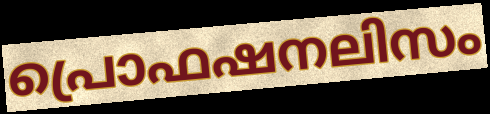
പ്രൊഫഷനലിസം